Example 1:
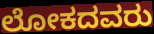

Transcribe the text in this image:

ಲೋಕದವರು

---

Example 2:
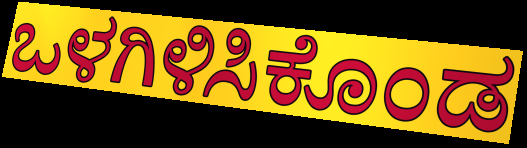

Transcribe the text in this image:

ಒಳಗಿಳಿಸಿಕೊಂಡ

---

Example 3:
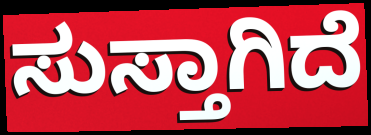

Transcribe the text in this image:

ಸುಸ್ತಾಗಿದೆ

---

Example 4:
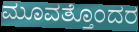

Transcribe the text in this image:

ಮೂವತ್ತೊಂದರ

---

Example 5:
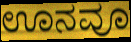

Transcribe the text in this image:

ಊನವೂ